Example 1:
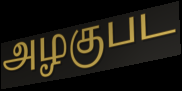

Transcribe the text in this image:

அழகுபட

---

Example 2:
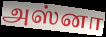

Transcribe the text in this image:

அஸ்னா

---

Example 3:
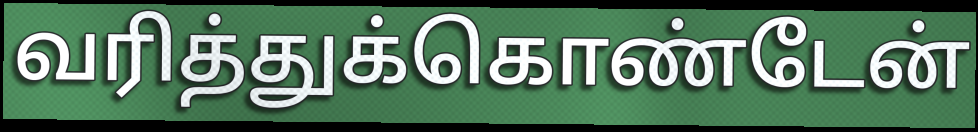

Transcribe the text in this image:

வரித்துக்கொண்டேன்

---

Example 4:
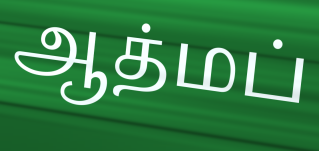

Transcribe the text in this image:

ஆத்மப்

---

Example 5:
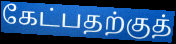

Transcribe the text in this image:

கேட்பதற்குத்